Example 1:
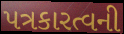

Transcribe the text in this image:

પત્રકારત્વની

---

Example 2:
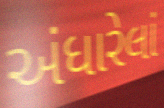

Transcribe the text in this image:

અંધારેલાં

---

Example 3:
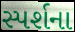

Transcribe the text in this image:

સ્પર્શના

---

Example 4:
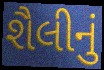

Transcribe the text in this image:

શૈલીનું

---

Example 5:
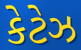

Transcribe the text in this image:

કેટેઝ